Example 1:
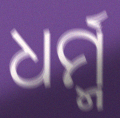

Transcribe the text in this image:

ଧର୍ମ୍ମ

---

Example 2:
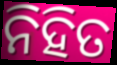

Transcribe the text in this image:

ନିହିତ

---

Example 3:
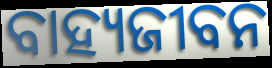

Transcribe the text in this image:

ବାହ୍ୟଜୀବନ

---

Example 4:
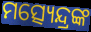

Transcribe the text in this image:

ମତ୍ସ୍ୟେନ୍ଦ୍ରଙ୍କ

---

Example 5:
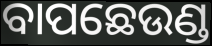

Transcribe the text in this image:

ବାପଛେଉଣ୍ଡ